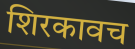
शिरकावच